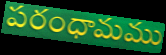
పరంధామము